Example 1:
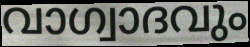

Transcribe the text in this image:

വാഗ്വാദവും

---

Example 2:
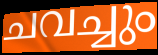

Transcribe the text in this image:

ചവച്ചും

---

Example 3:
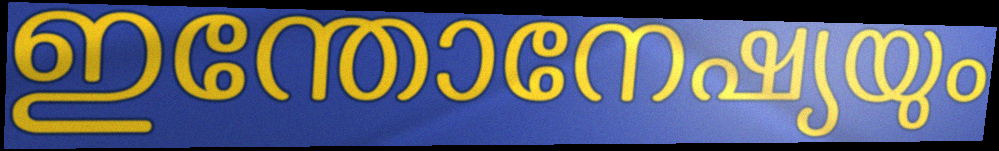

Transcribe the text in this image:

ഇന്തോനേഷ്യയും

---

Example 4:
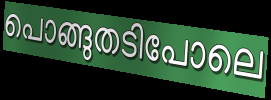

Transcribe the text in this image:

പൊങ്ങുതടിപോലെ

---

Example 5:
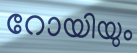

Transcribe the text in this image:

റോയിയും